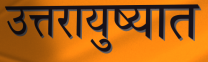
उत्तरायुष्यात